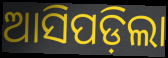
ଆସିପଡ଼ିଲା